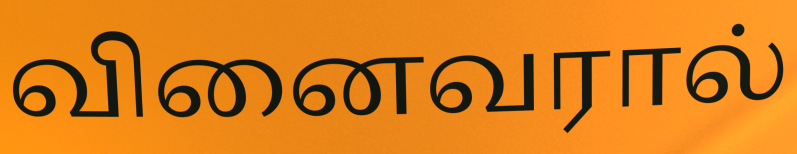
வினைவரால்